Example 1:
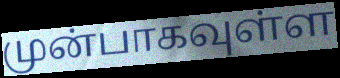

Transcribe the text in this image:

முன்பாகவுள்ள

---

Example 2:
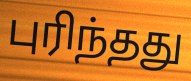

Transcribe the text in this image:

புரிந்தது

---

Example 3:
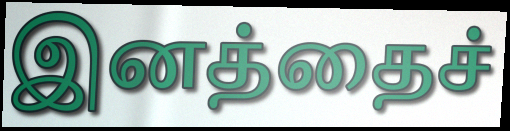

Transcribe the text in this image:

இனத்தைச்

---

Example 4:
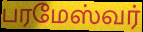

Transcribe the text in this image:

பரமேஸ்வர்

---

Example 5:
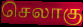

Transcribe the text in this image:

செலாகு